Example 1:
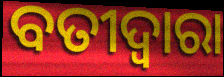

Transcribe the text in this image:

ବତୀଦ୍ୱାରା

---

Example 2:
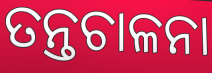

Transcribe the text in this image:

ତନ୍ତଚାଳନା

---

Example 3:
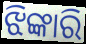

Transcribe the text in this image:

ଝିଙ୍କାରି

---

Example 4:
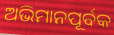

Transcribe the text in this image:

ଅଭିମାନପୂର୍ବକ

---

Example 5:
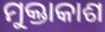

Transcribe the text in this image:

ମୁକ୍ତାକାଶ